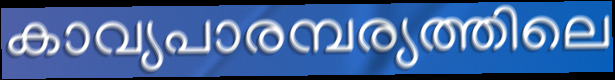
കാവ്യപാരമ്പര്യത്തിലെ